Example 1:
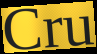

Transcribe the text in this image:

Cru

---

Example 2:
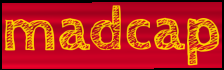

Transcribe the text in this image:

madcap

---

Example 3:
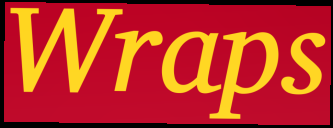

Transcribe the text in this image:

Wraps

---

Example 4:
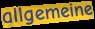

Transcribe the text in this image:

allgemeine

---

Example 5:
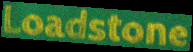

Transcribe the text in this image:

Loadstone